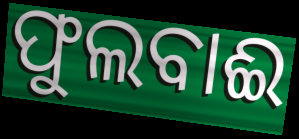
ଫୁଲବାଈ